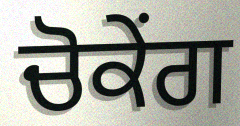
ਚੋਕੇਂਗ